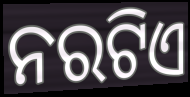
ନରଟିଏ